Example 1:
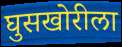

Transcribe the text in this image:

घुसखोरीला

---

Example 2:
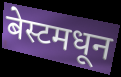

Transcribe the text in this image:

बेस्टमधून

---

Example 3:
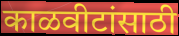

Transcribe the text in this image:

काळवीटांसाठी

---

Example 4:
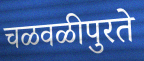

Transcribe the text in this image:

चळवळीपुरते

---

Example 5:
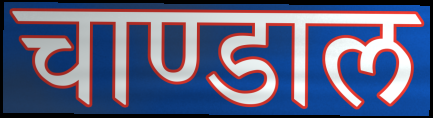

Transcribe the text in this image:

चाण्डाल